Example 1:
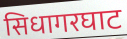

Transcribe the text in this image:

सिधागरघाट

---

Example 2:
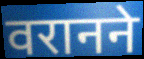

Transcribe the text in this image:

वरानने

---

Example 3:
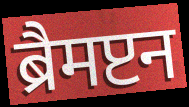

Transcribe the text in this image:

ब्रैमप्टन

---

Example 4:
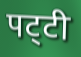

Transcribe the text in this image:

पट्‌टी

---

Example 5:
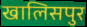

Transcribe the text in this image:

खालिसपुर